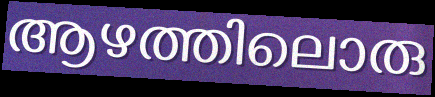
ആഴത്തിലൊരു